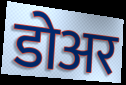
डोअर